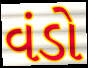
વંડો